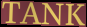
TANK